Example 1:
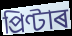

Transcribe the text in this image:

প্ৰিণ্টাৰ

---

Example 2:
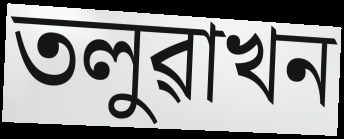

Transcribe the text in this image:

তলুৱাখন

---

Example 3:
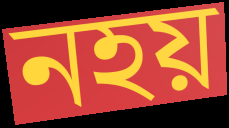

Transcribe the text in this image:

নহয়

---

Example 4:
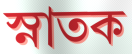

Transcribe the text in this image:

স্নাতক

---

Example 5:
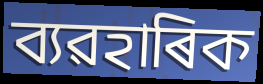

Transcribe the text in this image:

ব্যৱহাৰিক